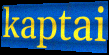
kaptai